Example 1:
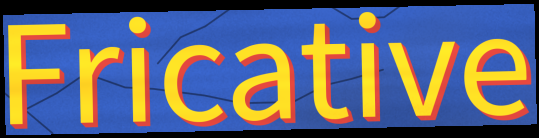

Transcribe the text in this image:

Fricative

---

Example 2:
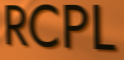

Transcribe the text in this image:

RCPL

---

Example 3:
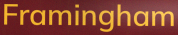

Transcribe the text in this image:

Framingham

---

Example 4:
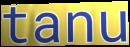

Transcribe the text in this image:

tanu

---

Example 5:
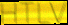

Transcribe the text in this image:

HTLV